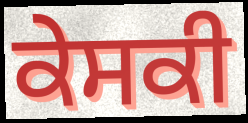
ਕੇਸਕੀ